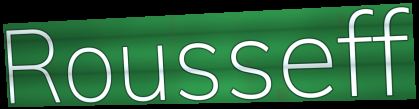
Rousseff